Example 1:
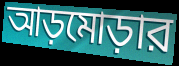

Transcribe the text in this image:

আড়মোড়ার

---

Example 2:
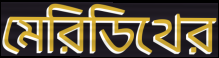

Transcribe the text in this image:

মেরিডিথের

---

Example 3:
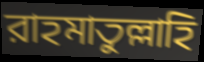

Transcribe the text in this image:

রাহমাতুল্লাহি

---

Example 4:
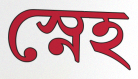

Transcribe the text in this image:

স্নেহ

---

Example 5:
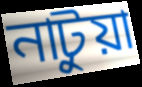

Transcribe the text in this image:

নাটুয়া